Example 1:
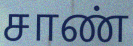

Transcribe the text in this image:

சாண்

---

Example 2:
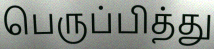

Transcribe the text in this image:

பெருப்பித்து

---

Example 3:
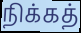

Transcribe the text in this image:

நிக்கத்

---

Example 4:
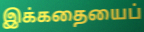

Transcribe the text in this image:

இக்கதையைப்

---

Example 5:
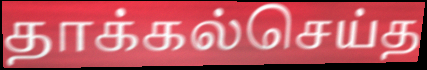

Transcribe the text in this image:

தாக்கல்செய்த